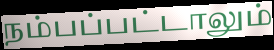
நம்பப்பட்டாலும்